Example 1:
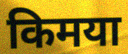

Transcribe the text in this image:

किमया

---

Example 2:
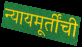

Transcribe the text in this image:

न्यायमूर्तींची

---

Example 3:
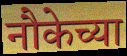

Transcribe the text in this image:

नौकेच्या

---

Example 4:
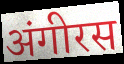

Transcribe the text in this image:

अंगीरस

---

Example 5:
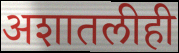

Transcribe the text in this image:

अशातलीही